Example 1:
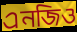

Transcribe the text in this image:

এনজিও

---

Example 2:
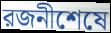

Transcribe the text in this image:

রজনীশেষে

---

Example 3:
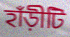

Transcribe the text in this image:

হাঁড়ীটি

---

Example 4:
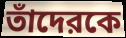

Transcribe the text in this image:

তাঁদেরকে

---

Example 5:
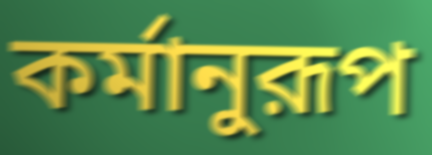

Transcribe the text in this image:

কর্মানুরূপ